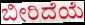
ಬೀರಿದೆಯೆ